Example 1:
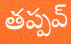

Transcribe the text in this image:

తప్పవ్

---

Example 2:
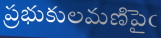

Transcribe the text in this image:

ప్రభుకులమణిపైఁ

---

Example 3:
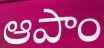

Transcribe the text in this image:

ఆపాం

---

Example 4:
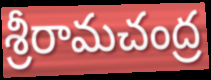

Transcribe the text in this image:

శ్రీరామచంద్ర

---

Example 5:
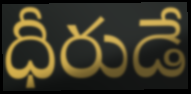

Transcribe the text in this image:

ధీరుడే